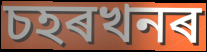
চহৰখনৰ